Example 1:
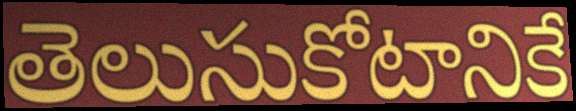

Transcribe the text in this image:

తెలుసుకోటానికే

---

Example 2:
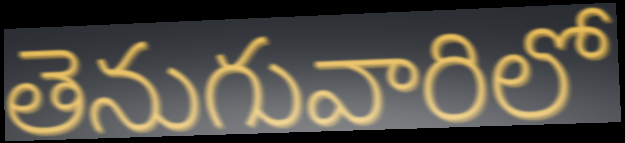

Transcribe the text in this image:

తెనుగువారిలో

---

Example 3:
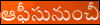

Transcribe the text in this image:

ఆఫీసునుంచీ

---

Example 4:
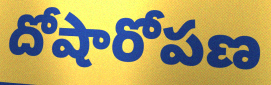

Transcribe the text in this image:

దోషారోపణ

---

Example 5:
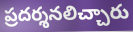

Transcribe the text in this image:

ప్రదర్శనలిచ్చారు